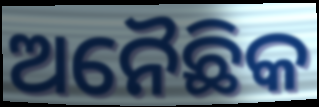
ଅନୈଛିକ